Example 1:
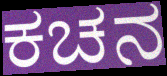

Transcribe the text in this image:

ಕಚನ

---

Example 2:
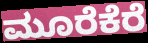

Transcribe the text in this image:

ಮೂರೆಕೆರೆ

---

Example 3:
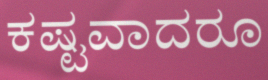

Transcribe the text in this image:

ಕಷ್ಟವಾದರೂ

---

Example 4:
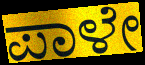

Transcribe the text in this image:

ಪಾಳೇ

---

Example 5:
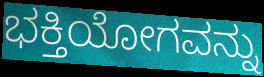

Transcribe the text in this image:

ಭಕ್ತಿಯೋಗವನ್ನು